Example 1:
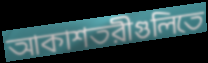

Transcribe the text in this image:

আকাশতরীগুলিতে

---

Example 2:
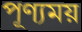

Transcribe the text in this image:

পূণ্যময়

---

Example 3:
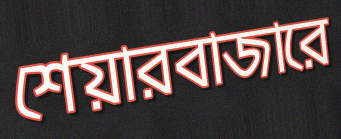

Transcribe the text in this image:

শেয়ারবাজারে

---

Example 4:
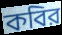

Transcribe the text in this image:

কবির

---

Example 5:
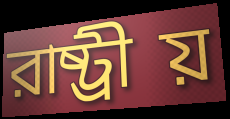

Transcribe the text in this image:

রাষ্ট্রীয়